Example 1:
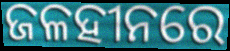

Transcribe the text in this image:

ଜଳହୀନରେ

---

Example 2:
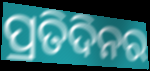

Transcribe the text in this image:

ପ୍ରତିଦିନର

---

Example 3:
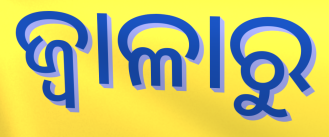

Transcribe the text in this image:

ଜ୍ଵାଳାରୁ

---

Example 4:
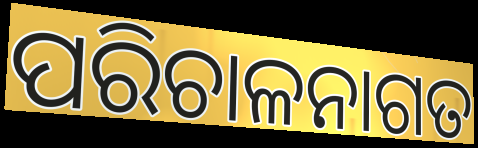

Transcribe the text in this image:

ପରିଚାଳନାଗତ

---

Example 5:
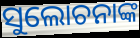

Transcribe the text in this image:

ସୁଲୋଚନାଙ୍କ